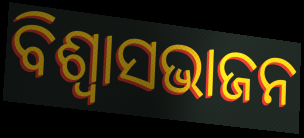
ବିଶ୍ୱାସଭାଜନ